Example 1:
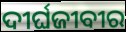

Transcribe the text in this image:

ଦୀର୍ଘଜୀବୀର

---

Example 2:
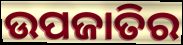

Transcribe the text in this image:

ଉପଜାତିର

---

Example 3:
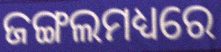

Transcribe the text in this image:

ଜଙ୍ଗଲମଧ୍ୟରେ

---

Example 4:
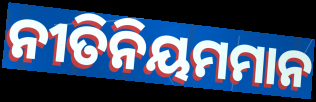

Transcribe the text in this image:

ନୀତିନିୟମମାନ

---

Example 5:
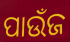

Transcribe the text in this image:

ପାଉଁଜ